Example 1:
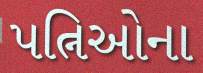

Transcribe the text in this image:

પત્નિઓના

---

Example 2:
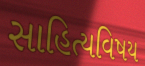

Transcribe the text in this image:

સાહિત્યવિષય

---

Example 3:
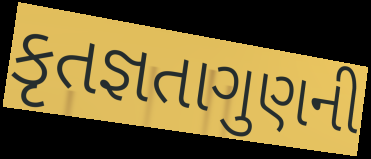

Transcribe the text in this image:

કૃતજ્ઞતાગુણની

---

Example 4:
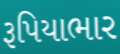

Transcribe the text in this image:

રૂપિયાભાર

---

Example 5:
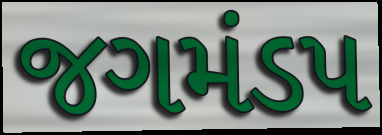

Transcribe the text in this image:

જગમંડપ